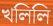
খলিলি